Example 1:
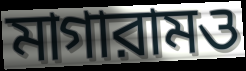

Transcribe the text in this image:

মাগারামও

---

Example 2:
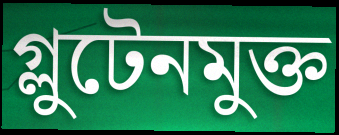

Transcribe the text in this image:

গ্লুটেনমুক্ত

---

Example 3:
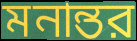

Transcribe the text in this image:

মনান্তর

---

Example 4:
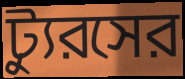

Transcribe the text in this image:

ট্যুরসের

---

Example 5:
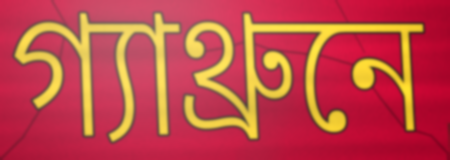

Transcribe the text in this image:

গ্যাথ্রুনে